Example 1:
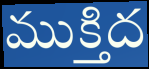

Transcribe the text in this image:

ముక్తిద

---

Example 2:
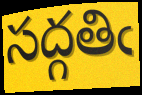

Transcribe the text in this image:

సద్గతిఁ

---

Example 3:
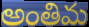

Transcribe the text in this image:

అంతిమ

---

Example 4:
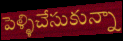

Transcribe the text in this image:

పెళ్ళిచేసుకున్నా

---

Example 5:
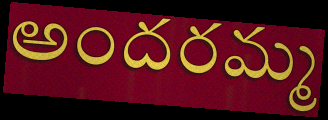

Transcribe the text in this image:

అందరమ్మ